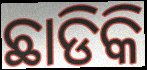
ଛାଡିକି